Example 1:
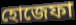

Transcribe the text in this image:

হোজেফা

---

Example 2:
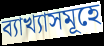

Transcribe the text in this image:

ব্যাখ্যাসমূহে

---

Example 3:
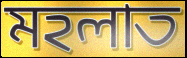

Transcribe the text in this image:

মহলাত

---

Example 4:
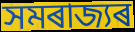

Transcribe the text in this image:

সমৰাজ্যৰ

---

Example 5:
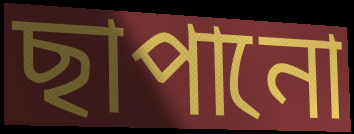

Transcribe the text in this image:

ছাপানো